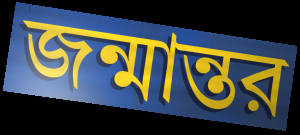
জন্মান্তর